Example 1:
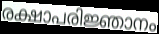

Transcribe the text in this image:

രക്ഷാപരിജ്ഞാനം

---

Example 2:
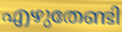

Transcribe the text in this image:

എഴുതേണ്ടി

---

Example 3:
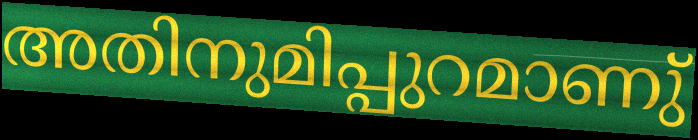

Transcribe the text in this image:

അതിനുമിപ്പുറമാണു്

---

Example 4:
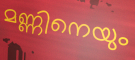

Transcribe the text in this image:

മണ്ണിനെയും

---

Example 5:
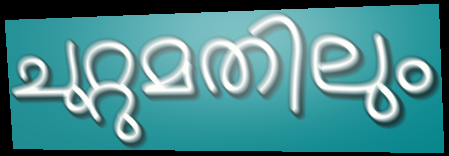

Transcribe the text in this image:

ചുറ്റുമതിലും